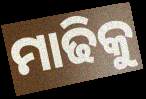
ମାଢିକୁ